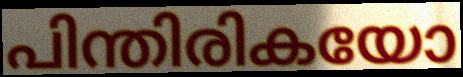
പിന്തിരികയോ